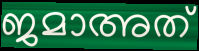
ജമാഅത്